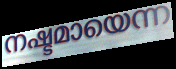
നഷ്ടമായെന്ന